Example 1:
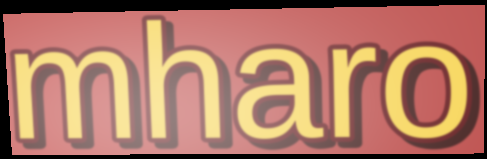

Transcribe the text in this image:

mharo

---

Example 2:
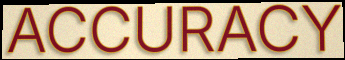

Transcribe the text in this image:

ACCURACY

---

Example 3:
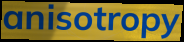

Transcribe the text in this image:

anisotropy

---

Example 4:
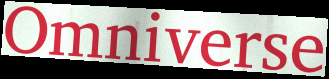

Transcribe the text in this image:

Omniverse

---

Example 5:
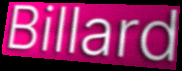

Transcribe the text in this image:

Billard